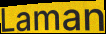
Laman